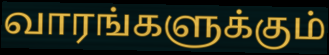
வாரங்களுக்கும்